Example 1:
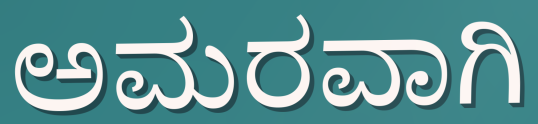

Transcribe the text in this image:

ಅಮರವಾಗಿ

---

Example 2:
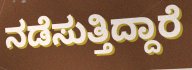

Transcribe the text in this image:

ನಡೆಸುತ್ತಿದ್ದಾರೆ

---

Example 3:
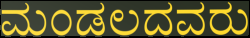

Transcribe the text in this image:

ಮಂಡಲದವರು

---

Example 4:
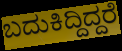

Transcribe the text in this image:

ಬದುಕಿದ್ದಿದ್ದರೆ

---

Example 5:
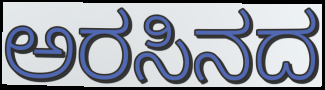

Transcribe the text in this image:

ಅರಸಿನದ